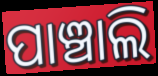
ପାଞ୍ଚାଲି